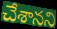
చేశానని